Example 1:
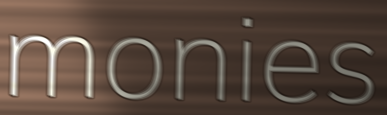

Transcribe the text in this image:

monies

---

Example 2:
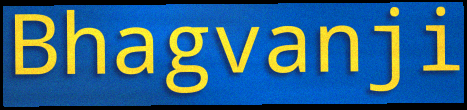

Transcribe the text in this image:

Bhagvanji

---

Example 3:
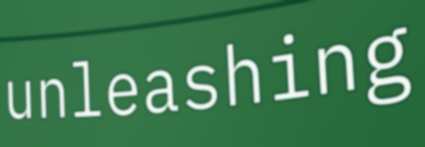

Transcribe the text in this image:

unleashing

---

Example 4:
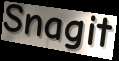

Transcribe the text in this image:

Snagit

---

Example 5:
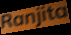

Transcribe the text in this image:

Ranjita